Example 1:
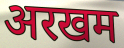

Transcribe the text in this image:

अरखम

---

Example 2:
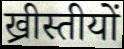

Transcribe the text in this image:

ख्रीस्तीयों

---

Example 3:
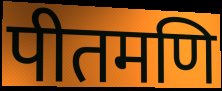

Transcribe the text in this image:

पीतमणि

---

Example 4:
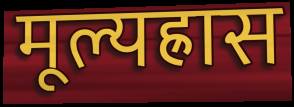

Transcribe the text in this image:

मूल्यह्रास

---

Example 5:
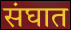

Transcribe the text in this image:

संघात